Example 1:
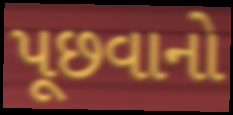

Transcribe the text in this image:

પૂછવાનો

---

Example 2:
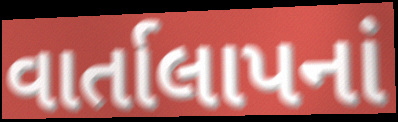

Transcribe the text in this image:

વાર્તાલાપનાં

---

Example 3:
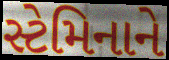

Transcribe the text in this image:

સ્ટેમિનાને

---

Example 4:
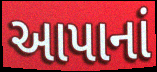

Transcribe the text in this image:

આપાનાં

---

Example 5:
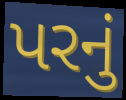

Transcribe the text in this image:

પરનું